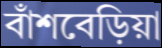
বাঁশবেড়িয়া